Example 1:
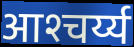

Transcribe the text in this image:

आश्चर्य्य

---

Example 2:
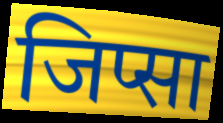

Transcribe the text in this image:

जिप्सा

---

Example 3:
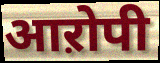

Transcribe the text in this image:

आऱोपी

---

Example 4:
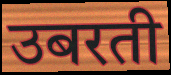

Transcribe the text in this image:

उबरती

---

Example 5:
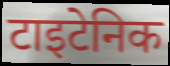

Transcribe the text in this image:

टाइटेनिक